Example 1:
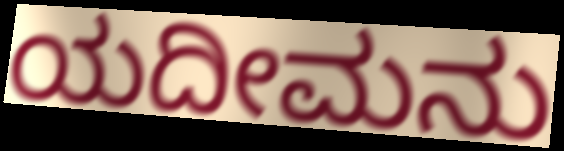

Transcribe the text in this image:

ಯದೀಮನು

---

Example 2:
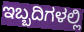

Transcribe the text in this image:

ಇಬ್ಬದಿಗಳಲ್ಲಿ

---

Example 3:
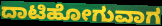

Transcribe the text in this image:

ದಾಟಿಹೋಗುವಾಗ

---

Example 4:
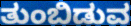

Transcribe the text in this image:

ತುಂಬಿಡುವ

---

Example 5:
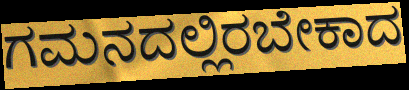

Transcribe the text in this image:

ಗಮನದಲ್ಲಿರಬೇಕಾದ